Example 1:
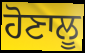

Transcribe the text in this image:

ਹੋਣਾਲੂ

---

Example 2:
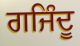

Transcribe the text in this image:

ਗਜਿੰਦੂ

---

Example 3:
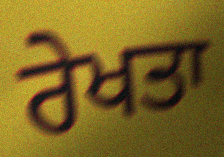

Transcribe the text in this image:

ਰੇਖਤਾ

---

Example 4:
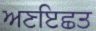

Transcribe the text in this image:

ਅਣਇਛਤ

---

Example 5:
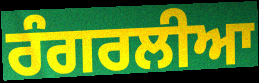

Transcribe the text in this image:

ਰੰਗਰਲੀਆ